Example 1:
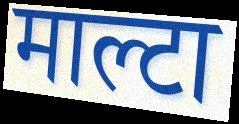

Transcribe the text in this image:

माल्टा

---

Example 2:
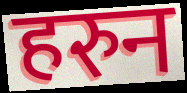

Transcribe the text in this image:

हरुन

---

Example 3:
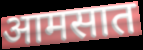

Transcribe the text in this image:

आमसात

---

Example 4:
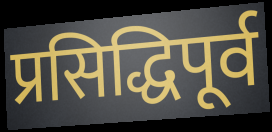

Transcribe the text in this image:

प्रसिद्धिपूर्व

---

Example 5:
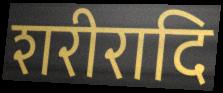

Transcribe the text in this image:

शरीरादि